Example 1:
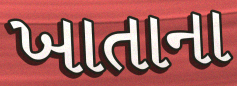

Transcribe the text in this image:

ખાતાના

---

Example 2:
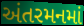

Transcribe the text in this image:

અંતરમનમાં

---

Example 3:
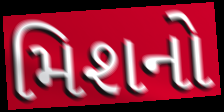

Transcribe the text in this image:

મિશનો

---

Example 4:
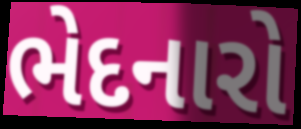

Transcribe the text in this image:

ભેદનારો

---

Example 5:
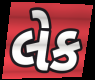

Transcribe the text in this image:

લેક